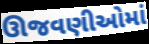
ઊજવણીઓમાં